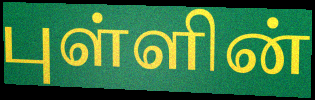
புள்ளின்